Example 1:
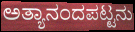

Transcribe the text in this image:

ಅತ್ಯಾನಂದಪಟ್ಟನು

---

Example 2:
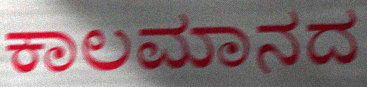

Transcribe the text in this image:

ಕಾಲಮಾನದ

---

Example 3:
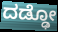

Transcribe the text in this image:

ದಡ್ಢೋ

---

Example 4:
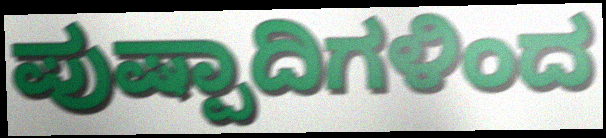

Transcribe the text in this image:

ಪುಷ್ಪಾದಿಗಳಿಂದ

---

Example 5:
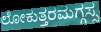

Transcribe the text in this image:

ಲೋಕುತ್ತರಮಗ್ಗಸ್ಸ